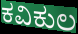
ಕವಿಕುಲ